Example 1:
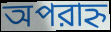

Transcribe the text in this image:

অপরাহ্ন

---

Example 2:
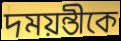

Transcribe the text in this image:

দময়ন্তীকে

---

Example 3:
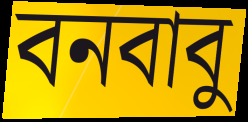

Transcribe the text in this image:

বনবাবু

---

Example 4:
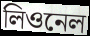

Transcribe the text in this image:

লিওনেল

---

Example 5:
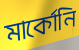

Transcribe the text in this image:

মার্কোনি